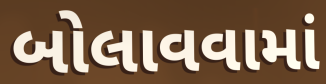
બોલાવવામાં